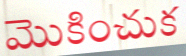
మొకించుక